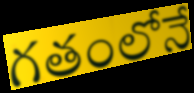
గతంలోనే